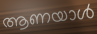
ആണയാൾ